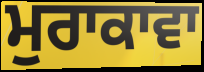
ਮੁਰਾਕਾਵਾ